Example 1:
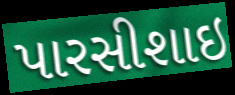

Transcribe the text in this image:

પારસીશાઇ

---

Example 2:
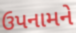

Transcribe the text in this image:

ઉપનામને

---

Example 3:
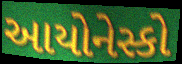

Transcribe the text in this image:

આયોનેસ્કો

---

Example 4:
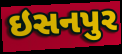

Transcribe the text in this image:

ઇસનપુર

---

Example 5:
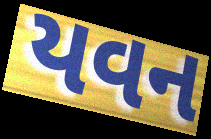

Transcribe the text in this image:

યવન